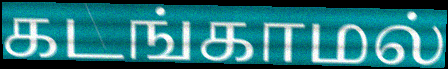
கடங்காமல்